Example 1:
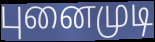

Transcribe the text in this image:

புனைமுடி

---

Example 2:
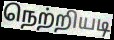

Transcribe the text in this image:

நெற்றியடி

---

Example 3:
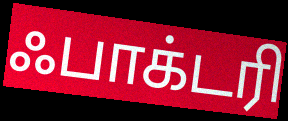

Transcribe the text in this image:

ஃபாக்டரி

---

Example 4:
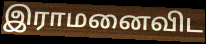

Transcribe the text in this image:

இராமனைவிட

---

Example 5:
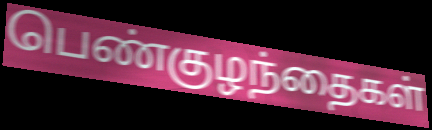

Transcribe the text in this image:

பெண்குழந்தைகள்